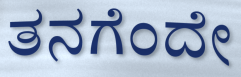
ತನಗೆಂದೇ